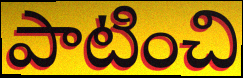
పాటించి